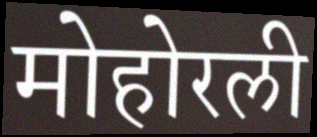
मोहोरली